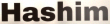
Hashim